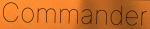
Commander